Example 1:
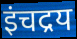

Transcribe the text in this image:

इंचद्रय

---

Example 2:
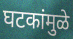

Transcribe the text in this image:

घटकांमुळे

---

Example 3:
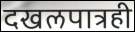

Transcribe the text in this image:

दखलपात्रही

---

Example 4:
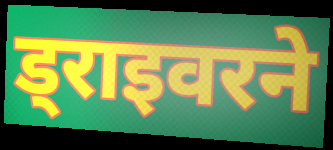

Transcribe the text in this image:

ड्राइवरने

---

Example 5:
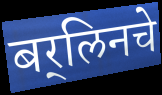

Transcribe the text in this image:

बर्लिनचे